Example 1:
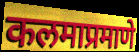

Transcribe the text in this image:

कलमाप्रमाणे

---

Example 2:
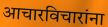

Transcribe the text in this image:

आचारविचारांना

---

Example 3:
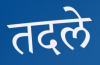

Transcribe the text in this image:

तदले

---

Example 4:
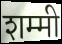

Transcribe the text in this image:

शम्मी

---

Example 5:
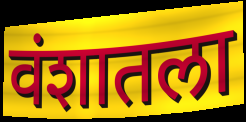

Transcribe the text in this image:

वंशातला